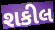
શકીલ